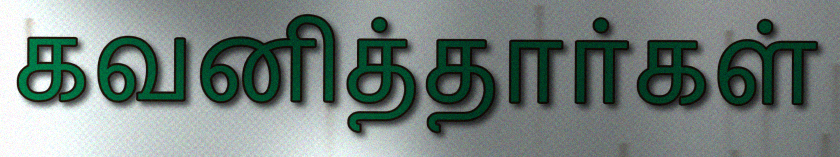
கவனித்தார்கள்